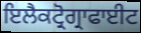
ਇਲੈਕਟ੍ਰੋਗ੍ਰਾਫਾਈਟ